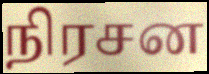
நிரசன